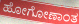
ಹೋಗೋಣಾಂತ